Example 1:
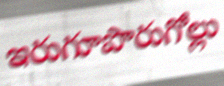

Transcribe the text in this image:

ఇరుగూపొరుగోల్లు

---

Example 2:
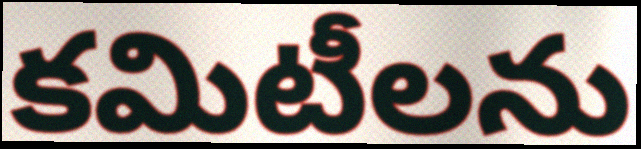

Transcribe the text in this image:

కమిటీలను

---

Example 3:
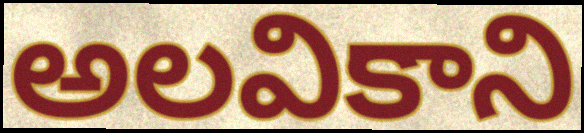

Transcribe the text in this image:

అలవికాని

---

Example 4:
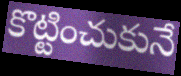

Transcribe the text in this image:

కొట్టించుకునే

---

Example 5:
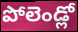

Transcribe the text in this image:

పోలెండ్లో